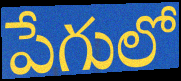
పేగులో